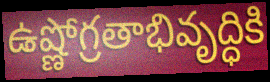
ఉష్ణోగ్రతాభివృద్ధికి